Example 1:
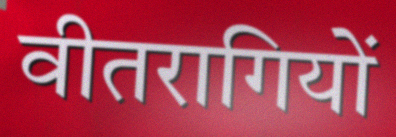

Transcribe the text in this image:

वीतरागियों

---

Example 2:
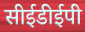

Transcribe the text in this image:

सीईडीईपी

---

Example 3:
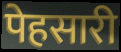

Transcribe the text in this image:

पेहसारी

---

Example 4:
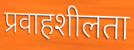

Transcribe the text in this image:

प्रवाहशीलता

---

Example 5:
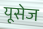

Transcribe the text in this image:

यूसेज